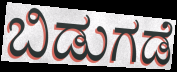
ಬಿಡುಗಡೆ